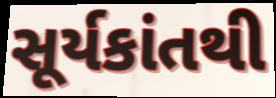
સૂર્યકાંતથી